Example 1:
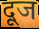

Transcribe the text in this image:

दूज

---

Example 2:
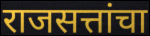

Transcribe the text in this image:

राजसत्तांचा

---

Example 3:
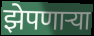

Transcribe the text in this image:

झेपणार्‍या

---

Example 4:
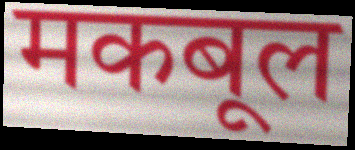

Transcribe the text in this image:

मकबूल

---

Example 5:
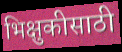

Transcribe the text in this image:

भिक्षुकीसाठी